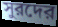
সুরদের